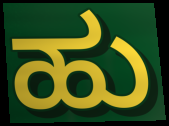
ಹು